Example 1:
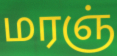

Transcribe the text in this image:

மரஞ்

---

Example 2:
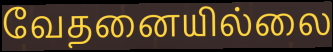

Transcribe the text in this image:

வேதனையில்லை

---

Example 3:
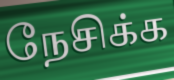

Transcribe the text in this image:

நேசிக்க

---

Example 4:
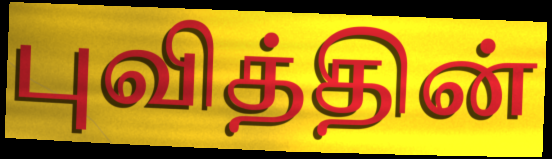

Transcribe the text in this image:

புவித்தின்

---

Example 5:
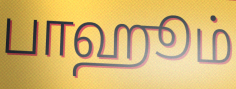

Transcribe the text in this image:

பாஹூம்